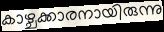
കാഴ്ചക്കാരനായിരുന്നു